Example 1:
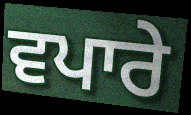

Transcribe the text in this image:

ਵਪਾਰੇ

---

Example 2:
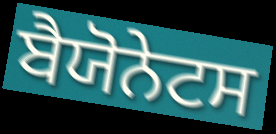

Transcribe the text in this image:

ਬੈਯੋਨੇਟਸ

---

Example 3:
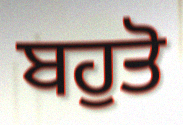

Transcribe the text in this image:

ਬਹੁਤੋ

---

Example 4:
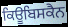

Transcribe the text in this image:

ਕਿਊਬਿਸਕੈਨ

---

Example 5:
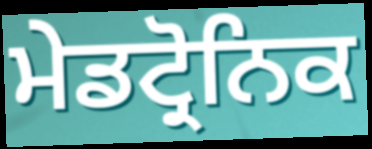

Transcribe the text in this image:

ਮੇਡਟ੍ਰੋਨਿਕ